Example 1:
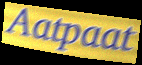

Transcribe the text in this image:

Aatpaat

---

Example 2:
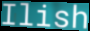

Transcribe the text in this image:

Ilish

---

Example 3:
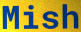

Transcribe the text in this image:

Mish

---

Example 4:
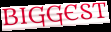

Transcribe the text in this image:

BIGGEST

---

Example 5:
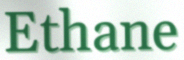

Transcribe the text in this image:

Ethane